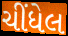
ચીંધેલ